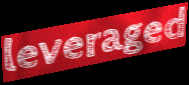
leveraged